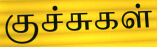
குச்சுகள்